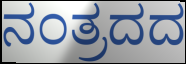
ನಂತ್ರದದ